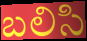
బలిసి